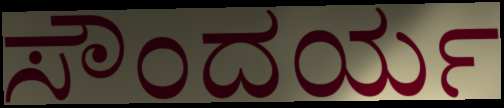
ಸೌಂದರ್ಯ